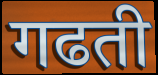
गढती